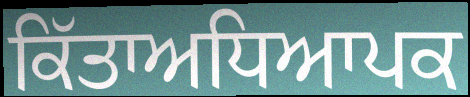
ਕਿੱਤਾਅਧਿਆਪਕ